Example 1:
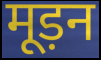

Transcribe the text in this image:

मूड़न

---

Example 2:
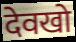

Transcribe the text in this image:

देवखो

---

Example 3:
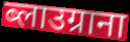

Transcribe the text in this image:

ब्लाउग्राना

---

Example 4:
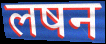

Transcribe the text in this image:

लषन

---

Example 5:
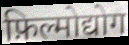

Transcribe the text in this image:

फ़िल्मोद्योग